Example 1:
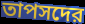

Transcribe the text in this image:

তাপসদের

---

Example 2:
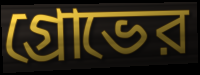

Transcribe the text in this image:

গ্রোভের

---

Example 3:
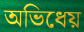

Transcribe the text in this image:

অভিধেয়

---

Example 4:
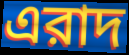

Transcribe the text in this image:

এরাদ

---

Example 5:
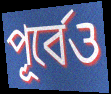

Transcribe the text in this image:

পূর্বেও